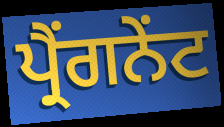
ਪ੍ਰੈਂਗਨੇਂਟ